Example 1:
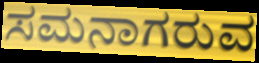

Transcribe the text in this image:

ಸಮನಾಗರುವ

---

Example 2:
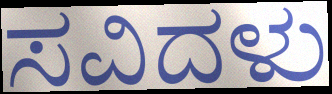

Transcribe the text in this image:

ಸವಿದಳು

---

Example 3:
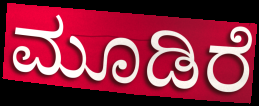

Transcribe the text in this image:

ಮೂಡಿರೆ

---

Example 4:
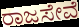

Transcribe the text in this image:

ರಾಜಸೇವೆ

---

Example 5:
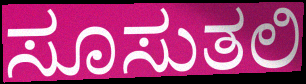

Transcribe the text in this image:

ಸೂಸುತಲಿ